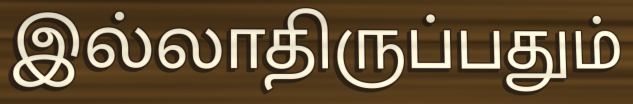
இல்லாதிருப்பதும்